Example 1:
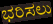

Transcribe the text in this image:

ಭರಿಸಲು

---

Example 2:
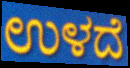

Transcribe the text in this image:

ಉಳದೆ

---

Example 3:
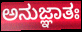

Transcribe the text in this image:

ಅನುಜ್ಞಾತಃ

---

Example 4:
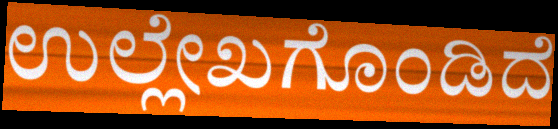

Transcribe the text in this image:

ಉಲ್ಲೇಖಗೊಂಡಿದೆ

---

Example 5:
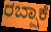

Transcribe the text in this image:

ರಬ್ಷಾಕೆ